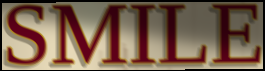
SMILE